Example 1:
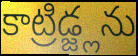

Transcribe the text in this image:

కాట్రిడ్జ్లను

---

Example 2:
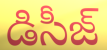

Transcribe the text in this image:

డిసీజ్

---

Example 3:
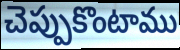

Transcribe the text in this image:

చెప్పుకొంటాము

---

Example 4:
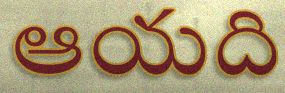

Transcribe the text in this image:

ఆయది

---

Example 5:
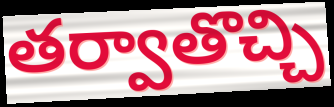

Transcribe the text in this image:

తర్వాతొచ్చి